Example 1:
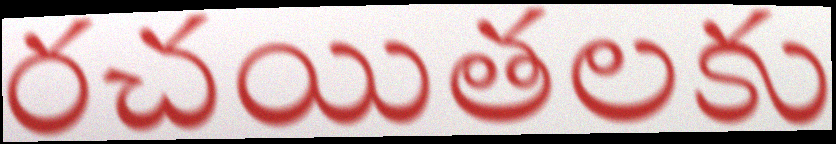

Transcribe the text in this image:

రచయితలకు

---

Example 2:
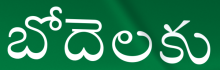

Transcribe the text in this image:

బోదెలకు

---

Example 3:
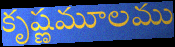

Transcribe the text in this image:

కృష్ణమూలము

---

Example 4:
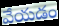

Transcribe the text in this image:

వేయడం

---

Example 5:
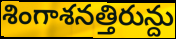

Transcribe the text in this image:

శింగాశనత్తిరున్దు